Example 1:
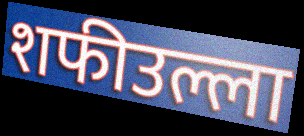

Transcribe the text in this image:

शफीउल्ला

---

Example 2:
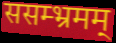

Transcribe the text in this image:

ससम्भ्रमम्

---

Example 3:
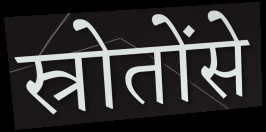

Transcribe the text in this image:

स्रोतोंसे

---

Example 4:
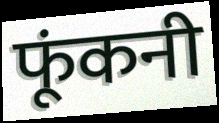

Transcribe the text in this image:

फूंकनी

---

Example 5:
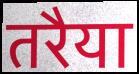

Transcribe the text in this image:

तरैया